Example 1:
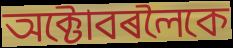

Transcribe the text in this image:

অক্টোবৰলৈকে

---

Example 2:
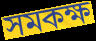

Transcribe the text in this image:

সমকক্ষ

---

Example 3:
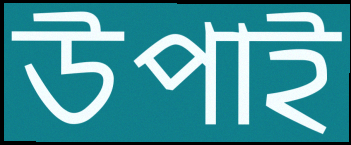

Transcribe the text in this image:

উপাই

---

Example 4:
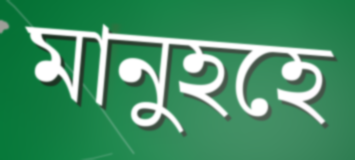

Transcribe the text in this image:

মানুহহে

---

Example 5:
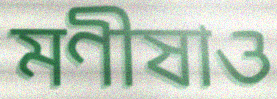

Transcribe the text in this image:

মণীষাও